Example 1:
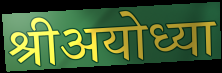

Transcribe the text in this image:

श्रीअयोध्या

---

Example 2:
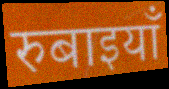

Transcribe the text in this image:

रुबाइयाँ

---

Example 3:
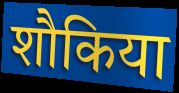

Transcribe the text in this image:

शौकिया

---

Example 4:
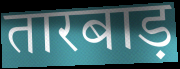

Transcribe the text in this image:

तारबाड़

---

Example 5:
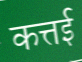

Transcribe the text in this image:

कत्तई